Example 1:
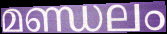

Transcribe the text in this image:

മണ്ഡലം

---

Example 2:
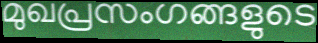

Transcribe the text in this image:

മുഖപ്രസംഗങ്ങളുടെ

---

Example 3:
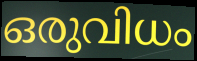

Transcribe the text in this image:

ഒരുവിധം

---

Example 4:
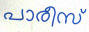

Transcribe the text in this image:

പാരീസ്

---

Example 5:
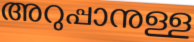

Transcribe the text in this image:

അറുപ്പാനുള്ള